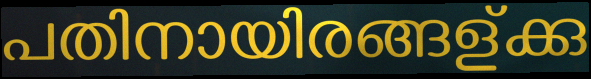
പതിനായിരങ്ങള്ക്കു